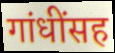
गांधींसह